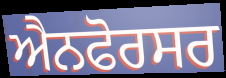
ਐਨਫੋਰਸਰ